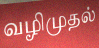
வழிமுதல்